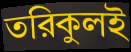
তরিকুলই